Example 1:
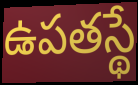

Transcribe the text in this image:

ఉపతస్థే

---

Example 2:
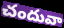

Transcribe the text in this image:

చందువా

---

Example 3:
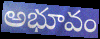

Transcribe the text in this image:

అభూవం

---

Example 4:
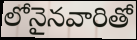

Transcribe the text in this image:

లోనైనవారితో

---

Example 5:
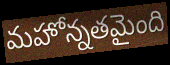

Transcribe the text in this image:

మహోన్నతమైంది